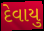
દેવાયુ